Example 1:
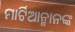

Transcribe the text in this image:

ମାର୍ଟିଆନ୍ମାନଙ୍କ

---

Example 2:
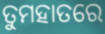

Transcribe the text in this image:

ତୁମହାତରେ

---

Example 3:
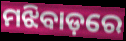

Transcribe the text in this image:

ମଝିବାଡ଼ରେ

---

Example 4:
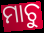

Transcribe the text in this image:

ମାଚୁ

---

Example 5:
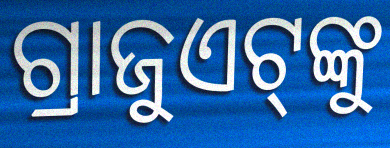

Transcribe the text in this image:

ଗ୍ରାଜୁଏଟ୍‌ଙ୍କୁ